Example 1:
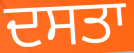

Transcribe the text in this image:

ਦਸਤਾ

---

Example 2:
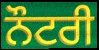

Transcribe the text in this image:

ਨੌਟਰੀ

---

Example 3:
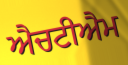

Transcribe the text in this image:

ਐਚਟੀਐਮ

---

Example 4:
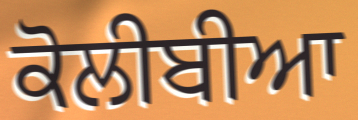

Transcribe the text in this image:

ਕੋਲੀਬੀਆ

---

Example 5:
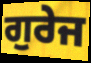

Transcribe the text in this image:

ਗੁਰੇਜ